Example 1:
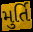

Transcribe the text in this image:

મુર્તિ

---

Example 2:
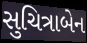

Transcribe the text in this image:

સુચિત્રાબેન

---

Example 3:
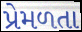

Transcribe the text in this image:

પ્રેમળતા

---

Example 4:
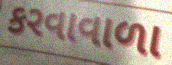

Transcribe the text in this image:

કરવાવાળા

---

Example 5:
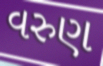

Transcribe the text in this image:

વરુણ